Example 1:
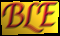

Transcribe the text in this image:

BLE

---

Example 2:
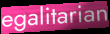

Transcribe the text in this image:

egalitarian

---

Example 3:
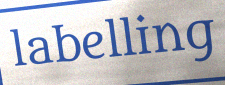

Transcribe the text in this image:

labelling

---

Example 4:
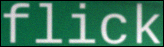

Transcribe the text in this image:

flick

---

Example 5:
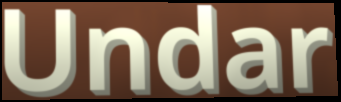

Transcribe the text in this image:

Undar